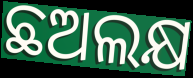
ଛଅଲକ୍ଷ